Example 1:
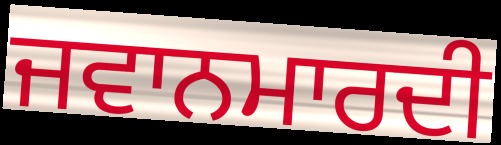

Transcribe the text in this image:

ਜਵਾਨਮਾਰਦੀ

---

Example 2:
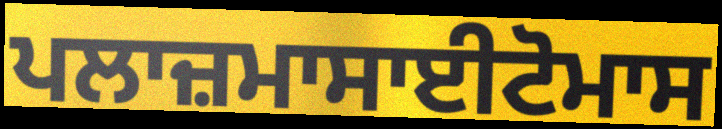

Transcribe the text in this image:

ਪਲਾਜ਼ਮਾਸਾਈਟੋਮਾਸ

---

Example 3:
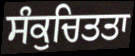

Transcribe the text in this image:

ਸੰਕੁਚਿਤਤਾ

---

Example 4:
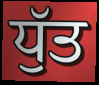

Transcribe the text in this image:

ਧੁੱਤ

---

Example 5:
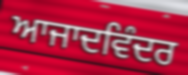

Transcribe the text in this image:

ਆਜਾਦਵਿੰਦਰ